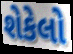
શેકેલો